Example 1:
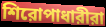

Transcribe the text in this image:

শিরোপাধারীরা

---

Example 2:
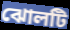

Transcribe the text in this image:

ঝোলটি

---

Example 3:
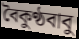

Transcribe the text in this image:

বৈকুণ্ঠবাবু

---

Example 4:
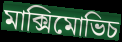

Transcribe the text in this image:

মাক্সিমোভিচ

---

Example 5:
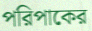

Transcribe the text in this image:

পরিপাকের